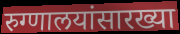
रुग्णालयांसारख्या